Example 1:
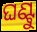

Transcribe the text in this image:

ଘଣ୍ଟୁ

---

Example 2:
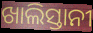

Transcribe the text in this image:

ଖାଲିସ୍ତାନୀ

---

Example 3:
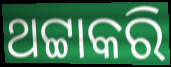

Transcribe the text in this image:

ଥଟ୍ଟାକରି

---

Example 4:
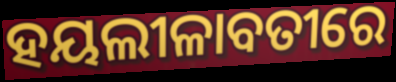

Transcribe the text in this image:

ହୟଲୀଳାବତୀରେ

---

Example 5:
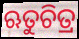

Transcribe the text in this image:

ଋତୁଚିତ୍ର